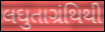
લઘુતાગ્રંથિથી